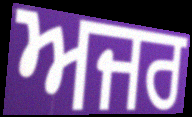
ਅਜਰ